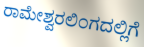
ರಾಮೇಶ್ವರಲಿಂಗದಲ್ಲಿಗೆ